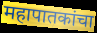
महापातकांचा